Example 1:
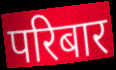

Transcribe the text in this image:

परिबार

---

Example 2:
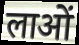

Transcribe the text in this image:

लाओं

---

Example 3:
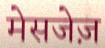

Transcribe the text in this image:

मेसजेज़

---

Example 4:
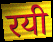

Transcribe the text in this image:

रयी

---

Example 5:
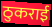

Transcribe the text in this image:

ठुकराई